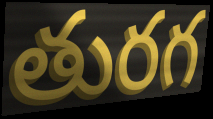
తురగ